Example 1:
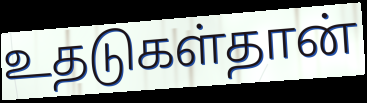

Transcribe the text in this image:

உதடுகள்தான்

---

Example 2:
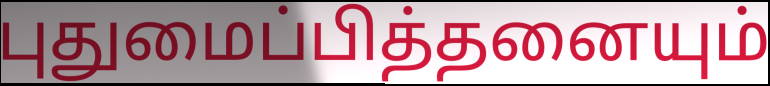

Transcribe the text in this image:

புதுமைப்பித்தனையும்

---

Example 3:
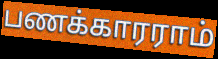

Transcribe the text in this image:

பணக்காரராம்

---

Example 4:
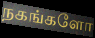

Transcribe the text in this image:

நகங்களோ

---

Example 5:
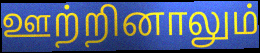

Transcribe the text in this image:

ஊற்றினாலும்